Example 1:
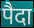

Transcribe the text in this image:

पैदा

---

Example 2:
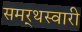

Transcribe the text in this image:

समर्थस्वारी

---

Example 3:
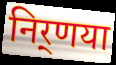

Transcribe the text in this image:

निर्णया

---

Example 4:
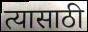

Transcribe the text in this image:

त्यासाठी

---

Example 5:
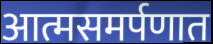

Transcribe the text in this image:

आत्मसमर्पणात